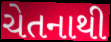
ચેતનાથી